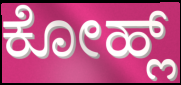
ಕೋಹ್ಲ್